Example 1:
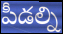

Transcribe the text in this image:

పీడల్ని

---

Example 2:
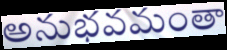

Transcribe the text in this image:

అనుభవమంతా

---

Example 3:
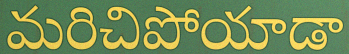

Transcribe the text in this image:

మరిచిపోయాడా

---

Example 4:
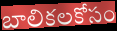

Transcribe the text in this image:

బాలికలకోసం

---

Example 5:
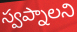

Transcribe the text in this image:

స్వప్నాలని